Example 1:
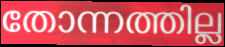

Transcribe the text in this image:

തോന്നത്തില്ല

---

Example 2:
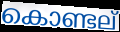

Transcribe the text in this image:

കൊണ്ടല്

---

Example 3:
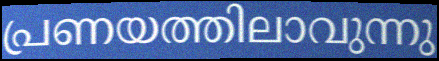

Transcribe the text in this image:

പ്രണയത്തിലാവുന്നു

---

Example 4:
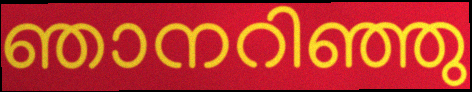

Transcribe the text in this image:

ഞാനറിഞ്ഞു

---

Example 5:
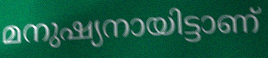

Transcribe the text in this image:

മനുഷ്യനായിട്ടാണ്